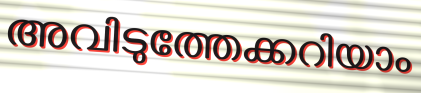
അവിടുത്തേക്കറിയാം